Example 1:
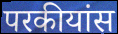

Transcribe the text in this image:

परकीयांस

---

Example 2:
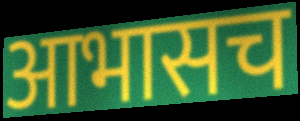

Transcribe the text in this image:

आभासच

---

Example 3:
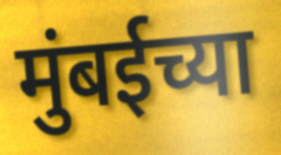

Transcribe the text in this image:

मुंबईच्या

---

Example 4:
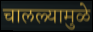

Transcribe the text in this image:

चालल्यामुळे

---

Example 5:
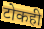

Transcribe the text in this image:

टोकही